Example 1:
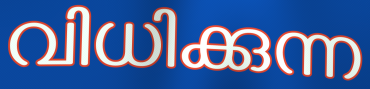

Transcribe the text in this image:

വിധിക്കുന്ന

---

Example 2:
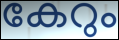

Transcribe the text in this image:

കേറും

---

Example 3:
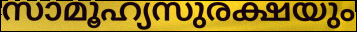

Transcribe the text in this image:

സാമൂഹ്യസുരക്ഷയും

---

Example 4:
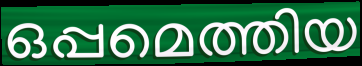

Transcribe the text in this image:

ഒപ്പമെത്തിയ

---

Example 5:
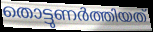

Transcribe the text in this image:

തൊട്ടുണർത്തിയത്